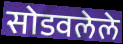
सोडवलेले